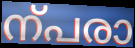
ന്പരാ